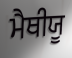
ਮੈਥੀਯੂ